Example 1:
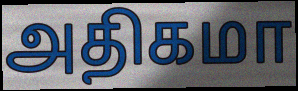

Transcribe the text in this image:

அதிகமா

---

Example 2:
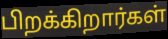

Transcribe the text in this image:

பிறக்கிறார்கள்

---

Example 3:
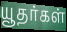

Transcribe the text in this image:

யூதர்கள்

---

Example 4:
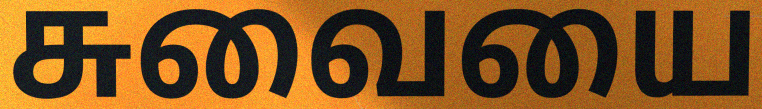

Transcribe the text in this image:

சுவையை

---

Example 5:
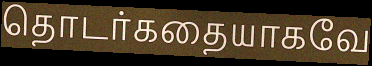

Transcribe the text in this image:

தொடர்கதையாகவே